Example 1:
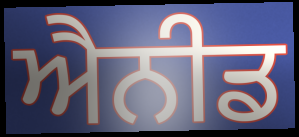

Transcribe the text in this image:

ਐਨੀਡ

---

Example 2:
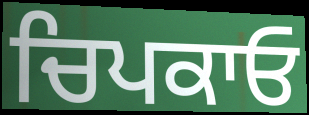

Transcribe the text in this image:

ਚਿਪਕਾਓ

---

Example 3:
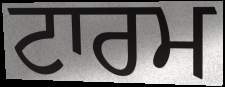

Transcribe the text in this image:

ਟਾਰਮ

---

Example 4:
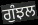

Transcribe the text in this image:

ਗੁੰਝਲ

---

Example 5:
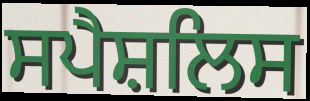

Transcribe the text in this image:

ਸਪੈਸ਼ਲਿਸ